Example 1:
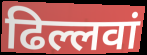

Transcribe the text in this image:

ढिल्लवां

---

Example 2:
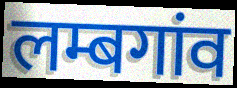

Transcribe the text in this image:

लम्बगांव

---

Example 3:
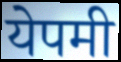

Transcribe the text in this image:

येपमी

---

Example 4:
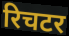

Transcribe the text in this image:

रिचटर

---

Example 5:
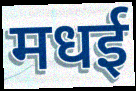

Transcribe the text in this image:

मधई